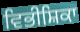
ਵਿਭੀਸ਼ਿਕਾ